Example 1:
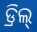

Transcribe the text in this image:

ଡ୍ରିଲ୍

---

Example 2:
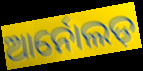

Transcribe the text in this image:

ଆର୍ନୋଲଡ଼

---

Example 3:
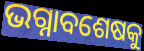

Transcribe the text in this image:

ଭଗ୍ନାବଶେଷକୁ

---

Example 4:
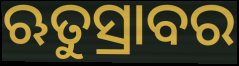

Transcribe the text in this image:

ଋତୁସ୍ରାବର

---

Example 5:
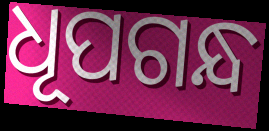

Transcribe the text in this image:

ଧୂପଗନ୍ଧ